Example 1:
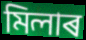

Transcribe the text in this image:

মিলাৰ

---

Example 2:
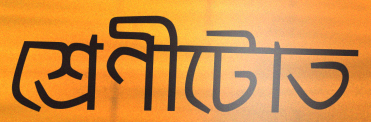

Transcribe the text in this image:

শ্ৰেণীটোত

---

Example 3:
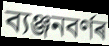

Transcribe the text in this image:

ব্যঞ্জনবৰ্ণৰ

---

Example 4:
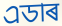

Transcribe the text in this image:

এডাৰ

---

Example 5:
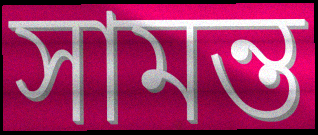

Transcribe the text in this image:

সামন্ত